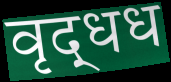
वृद्धध